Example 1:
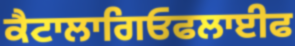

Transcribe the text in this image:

ਕੈਟਾਲਾਗਿਓਫਲਾਈਫ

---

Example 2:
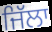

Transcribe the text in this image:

ਜਿੱਲਾ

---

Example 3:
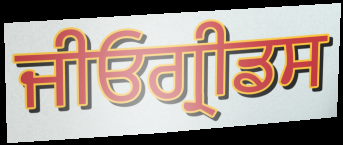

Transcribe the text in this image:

ਜੀਓਗ੍ਰੀਡਸ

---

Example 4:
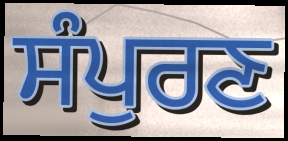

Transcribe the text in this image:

ਸੰਪੁਰਣ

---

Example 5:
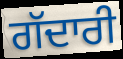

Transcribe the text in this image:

ਗੱਦਾਰੀ